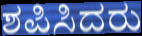
ಶಪಿಸಿದರು